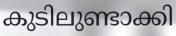
കുടിലുണ്ടാക്കി